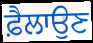
ਫ਼ੈਲਾਉਣ